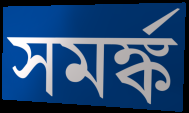
সমর্ঙ্ক